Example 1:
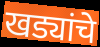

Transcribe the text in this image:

खड्यांचे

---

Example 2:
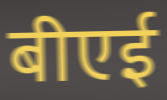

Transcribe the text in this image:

बीएई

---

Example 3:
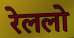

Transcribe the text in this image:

रेललो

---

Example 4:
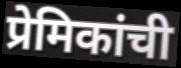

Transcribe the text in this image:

प्रेमिकांची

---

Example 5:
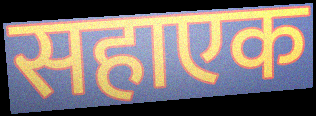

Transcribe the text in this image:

सहाएक